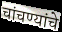
चांचण्यांचे